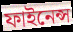
ফাইনেন্স